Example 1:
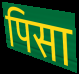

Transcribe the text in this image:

पिसा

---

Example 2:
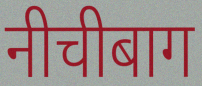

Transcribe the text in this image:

नीचीबाग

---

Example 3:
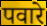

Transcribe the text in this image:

पवारे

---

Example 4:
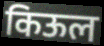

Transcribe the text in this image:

किऊल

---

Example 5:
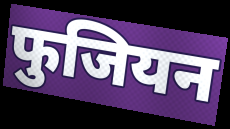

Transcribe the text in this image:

फुजियन